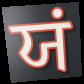
ਯਂ